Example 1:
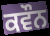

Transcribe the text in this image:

ਕਵੌਨ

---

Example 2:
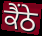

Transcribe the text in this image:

ਕੈਂਠੇ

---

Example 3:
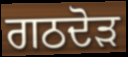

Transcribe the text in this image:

ਗਠਦੋੜ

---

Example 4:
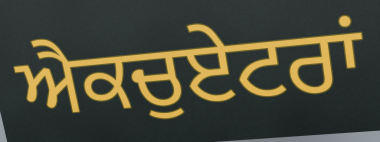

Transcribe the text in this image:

ਐਕਚੁਏਟਰਾਂ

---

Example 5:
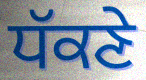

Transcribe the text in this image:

ਧੱਕਣੇ